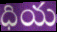
ధియ